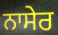
ਨਾਸੇਰ